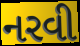
નરવી